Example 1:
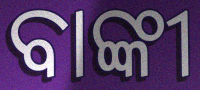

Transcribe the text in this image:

ବାଙ୍କୀ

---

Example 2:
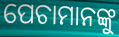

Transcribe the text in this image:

ପେଚାମାନଙ୍କୁ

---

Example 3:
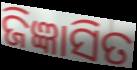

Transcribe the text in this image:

ଜିଜ୍ଞାସିତ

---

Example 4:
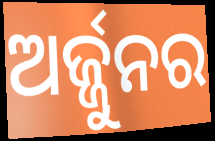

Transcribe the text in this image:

ଅର୍ଜ୍ଜୁନର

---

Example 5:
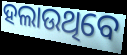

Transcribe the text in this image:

ହଲାଉଥିବେ